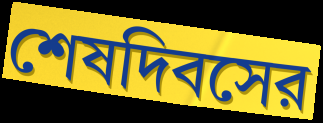
শেষদিবসের